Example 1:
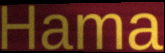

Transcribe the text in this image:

Hama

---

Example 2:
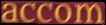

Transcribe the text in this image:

accom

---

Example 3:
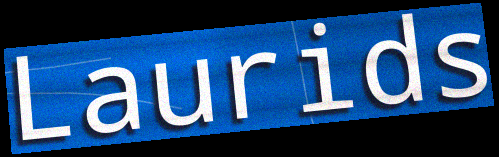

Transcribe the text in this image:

Laurids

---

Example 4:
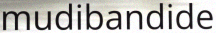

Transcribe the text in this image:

mudibandide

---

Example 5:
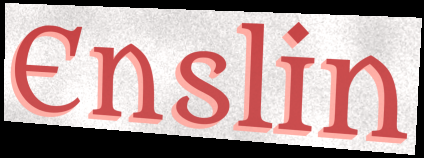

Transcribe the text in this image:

Enslin